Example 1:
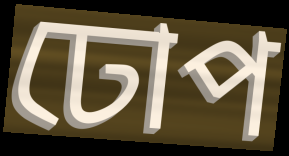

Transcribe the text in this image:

ঢোপ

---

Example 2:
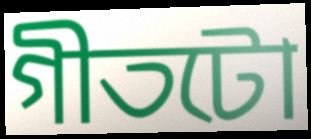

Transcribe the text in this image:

গীতটো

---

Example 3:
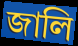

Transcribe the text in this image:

জালি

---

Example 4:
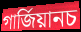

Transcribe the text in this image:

গাৰ্জিয়ানচ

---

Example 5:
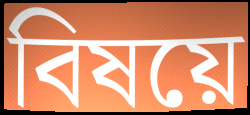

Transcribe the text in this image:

বিষয়ে